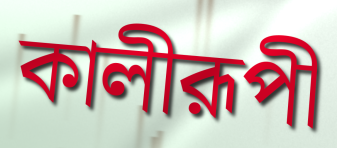
কালীরূপী